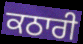
ਕਠਾਰੀ